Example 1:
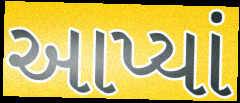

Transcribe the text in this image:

આપ્યાં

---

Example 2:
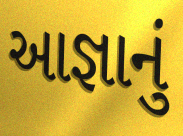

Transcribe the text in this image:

આજ્ઞાનું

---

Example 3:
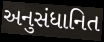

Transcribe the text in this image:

અનુસંધાનિત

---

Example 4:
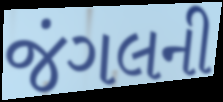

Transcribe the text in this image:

જંગલની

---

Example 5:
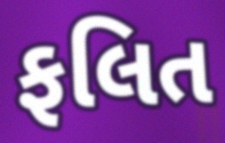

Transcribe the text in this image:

ફલિત